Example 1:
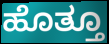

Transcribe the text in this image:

ಹೊತ್ತೂ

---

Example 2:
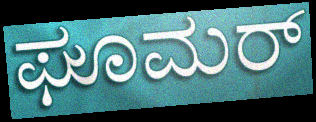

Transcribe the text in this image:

ಘೂಮರ್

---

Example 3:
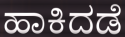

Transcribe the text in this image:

ಹಾಕಿದಡೆ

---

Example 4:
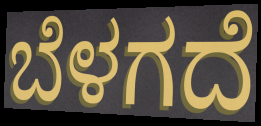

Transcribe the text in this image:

ಬೆಳಗದೆ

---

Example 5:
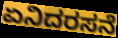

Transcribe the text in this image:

ಏನಿದರಸನೆ